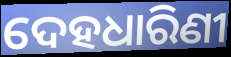
ଦେହଧାରିଣୀ